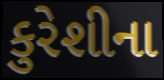
કુરેશીના